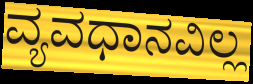
ವ್ಯವಧಾನವಿಲ್ಲ